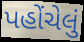
પહોંચેલું